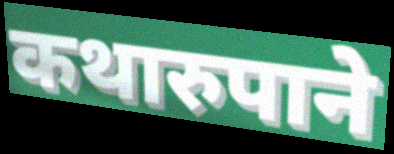
कथारुपाने